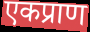
एकप्राण